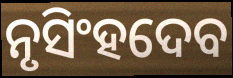
ନୃସିଂହଦେବ